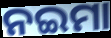
ନଇମା